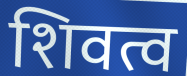
शिवत्व